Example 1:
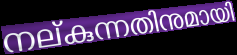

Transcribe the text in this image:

നല്‌കുന്നതിനുമായി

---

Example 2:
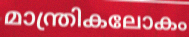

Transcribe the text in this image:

മാന്ത്രികലോകം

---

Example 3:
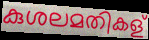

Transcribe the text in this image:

കുശലമതികള്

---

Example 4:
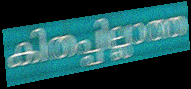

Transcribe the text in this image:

കിതപ്പില്ലാത്ത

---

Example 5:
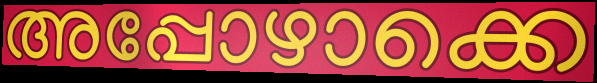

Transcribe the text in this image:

അപ്പോഴാക്കെ